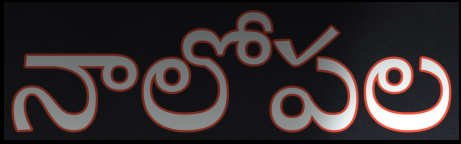
నాలోపల